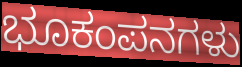
ಭೂಕಂಪನಗಳು